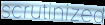
scrutinized